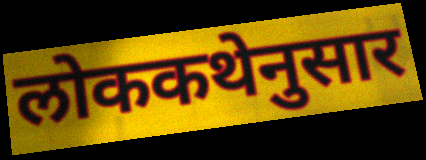
लोककथेनुसार